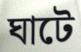
ঘাটে